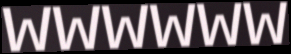
wwwwww